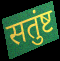
सतुंष्ट